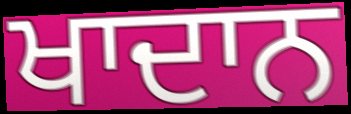
ਖਾਦਾਨ